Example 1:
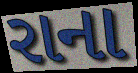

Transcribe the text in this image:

રાના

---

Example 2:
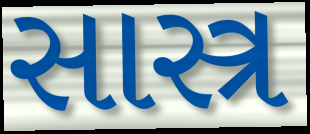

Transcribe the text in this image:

સાસ્ત્ર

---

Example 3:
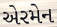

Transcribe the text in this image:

એરમેન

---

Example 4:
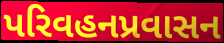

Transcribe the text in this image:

પરિવહનપ્રવાસન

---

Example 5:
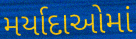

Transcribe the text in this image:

મર્યાદાઓમાં